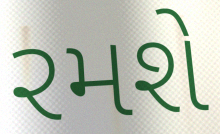
રમશે